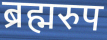
ब्रह्मरुप